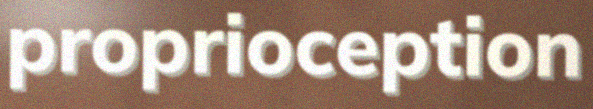
proprioception